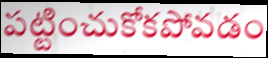
పట్టించుకోకపోవడం